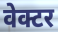
वेक्टर